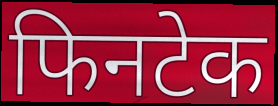
फिनटेक